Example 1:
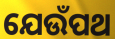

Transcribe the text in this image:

ଯେଉଁପଥ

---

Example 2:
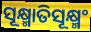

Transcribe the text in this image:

ସୂକ୍ଷ୍ମାତିସୂକ୍ଷ୍ମଂ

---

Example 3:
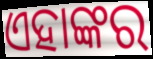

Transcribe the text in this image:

ଏହାଙ୍କର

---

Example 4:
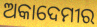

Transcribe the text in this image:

ଅକାଦେମୀର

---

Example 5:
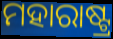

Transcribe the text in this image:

ମହାରାଷ୍ଟ୍ର